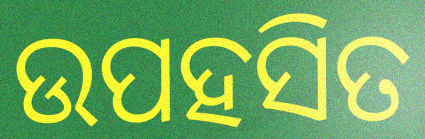
ଉପହସିତ